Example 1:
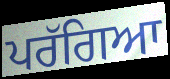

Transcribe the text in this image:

ਪਰੱਗਿਆ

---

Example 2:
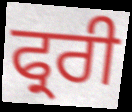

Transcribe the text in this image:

ਫ੍ਰਰੀ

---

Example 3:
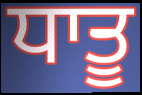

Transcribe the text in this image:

ਧਾਤੂ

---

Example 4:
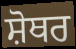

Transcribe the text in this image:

ਸ਼ੋਥਰ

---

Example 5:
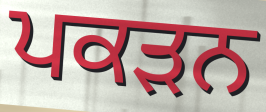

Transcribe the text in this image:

ਪਕੜਨ